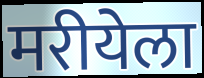
मरीयेला